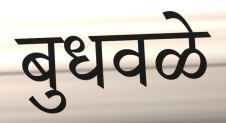
बुधवळे